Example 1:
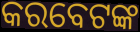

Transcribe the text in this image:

କରବେଟଙ୍କ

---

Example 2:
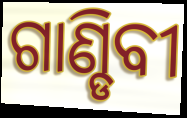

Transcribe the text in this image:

ଗାଣ୍ଡିବୀ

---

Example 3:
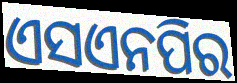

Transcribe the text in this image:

ଏସଏନପିର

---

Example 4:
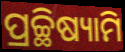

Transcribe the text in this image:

ପ୍ରଚ୍ଛିଷ୍ୟାମି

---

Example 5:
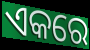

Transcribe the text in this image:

ଏକରେ